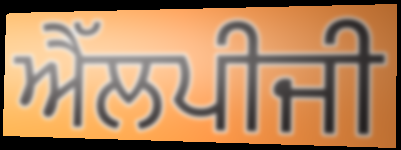
ਐੱਲਪੀਜੀ